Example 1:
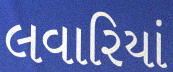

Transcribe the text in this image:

લવારિયાં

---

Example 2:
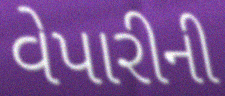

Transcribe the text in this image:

વેપારીની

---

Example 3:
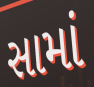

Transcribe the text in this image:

સામાં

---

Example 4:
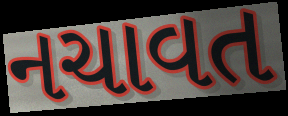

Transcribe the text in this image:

નચાવત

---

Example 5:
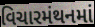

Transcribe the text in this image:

વિચારમંથનમાં